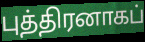
புத்திரனாகப்